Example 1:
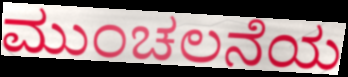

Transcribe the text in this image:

ಮುಂಚಲನೆಯ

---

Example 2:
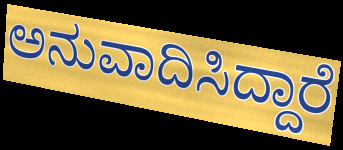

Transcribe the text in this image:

ಅನುವಾದಿಸಿದ್ದಾರೆ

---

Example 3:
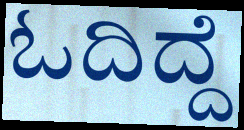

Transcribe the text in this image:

ಓದಿದ್ದೆ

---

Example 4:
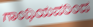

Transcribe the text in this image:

ಗಾಂಧಿಯವರಿಂದ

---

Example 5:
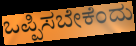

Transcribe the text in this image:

ಒಪ್ಪಿಸಬೇಕೆಂದು